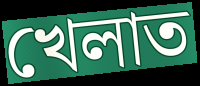
খেলাত